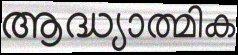
ആദ്ധ്യാത്മിക